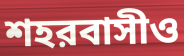
শহরবাসীও